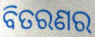
ବିତରଣର